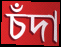
চঁদা